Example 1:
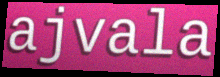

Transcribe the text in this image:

ajvala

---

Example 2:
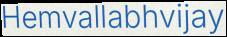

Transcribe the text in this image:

Hemvallabhvijay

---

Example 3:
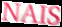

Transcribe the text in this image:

NAIS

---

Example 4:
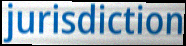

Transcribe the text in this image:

jurisdiction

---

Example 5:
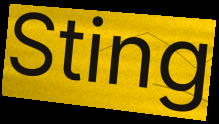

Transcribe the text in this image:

Sting